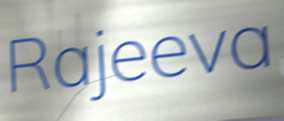
Rajeeva